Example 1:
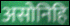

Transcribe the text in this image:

असोनिहि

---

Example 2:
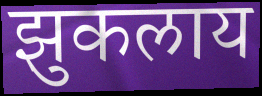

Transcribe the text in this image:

झुकलाय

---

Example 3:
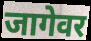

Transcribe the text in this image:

जागेवर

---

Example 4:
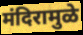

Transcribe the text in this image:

मंदिरामुळे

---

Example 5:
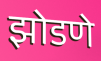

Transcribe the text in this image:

झोडणे